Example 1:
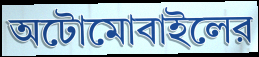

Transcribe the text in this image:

অটোমোবাইলের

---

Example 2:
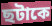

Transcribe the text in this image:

ছটাকে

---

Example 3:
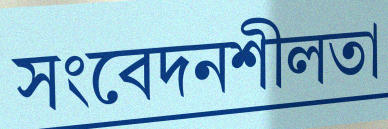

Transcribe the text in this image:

সংবেদনশীলতা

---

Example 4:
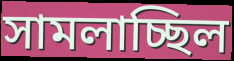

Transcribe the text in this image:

সামলাচ্ছিল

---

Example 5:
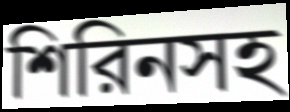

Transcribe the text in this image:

শিরিনসহ